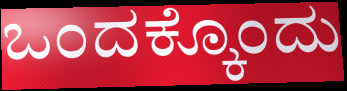
ಒಂದಕ್ಕೊಂದು